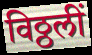
विठ्ठलीं